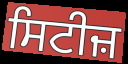
ਸਿਟੀਜ਼